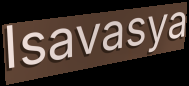
Isavasya